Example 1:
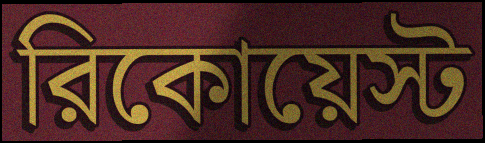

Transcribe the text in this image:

রিকোয়েস্ট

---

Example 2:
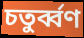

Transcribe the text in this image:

চতুর্ব্বণ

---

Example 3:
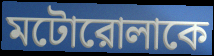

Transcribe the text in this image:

মটোরোলাকে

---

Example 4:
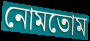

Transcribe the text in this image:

নোমতোম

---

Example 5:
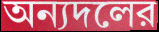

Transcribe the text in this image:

অন্যদলের